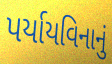
પર્યાયવિનાનું